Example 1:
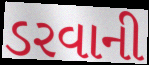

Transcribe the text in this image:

ડરવાની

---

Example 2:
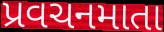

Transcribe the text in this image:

પ્રવચનમાતા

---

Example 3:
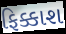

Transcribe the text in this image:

ફિક્કાશ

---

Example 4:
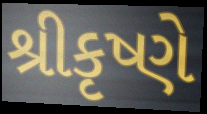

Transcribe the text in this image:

શ્રીકૃષ્ણે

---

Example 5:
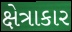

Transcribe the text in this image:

ક્ષેત્રાકાર